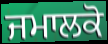
ਜਮਾਲਕੋ